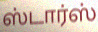
ஸ்டார்ஸ்